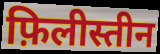
फ़िलीस्तीन